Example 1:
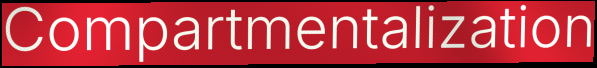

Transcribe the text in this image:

Compartmentalization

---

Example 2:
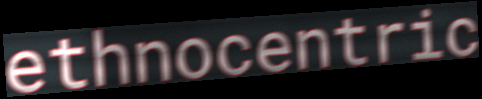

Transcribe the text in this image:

ethnocentric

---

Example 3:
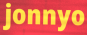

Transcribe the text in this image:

jonnyo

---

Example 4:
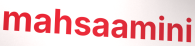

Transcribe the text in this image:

mahsaamini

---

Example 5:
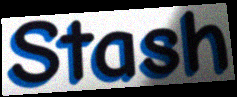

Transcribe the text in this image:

Stash